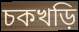
চকখড়ি